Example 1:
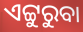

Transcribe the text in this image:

ଏଟ୍ଟୁରୁବା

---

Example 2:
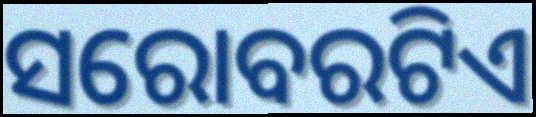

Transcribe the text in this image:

ସରୋବରଟିଏ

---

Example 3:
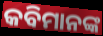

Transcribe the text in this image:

କବିମାନଙ୍କ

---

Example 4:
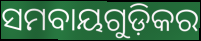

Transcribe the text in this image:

ସମବାୟଗୁଡ଼ିକର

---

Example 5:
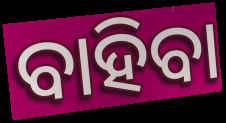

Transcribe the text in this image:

ବାହିବା